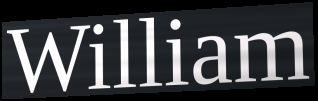
William